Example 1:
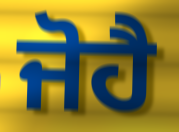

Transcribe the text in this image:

ਜੋਹੈ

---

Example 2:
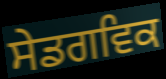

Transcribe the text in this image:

ਸੇਡਗਵਿਕ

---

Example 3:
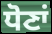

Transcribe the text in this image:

ਧੋਣਾਂ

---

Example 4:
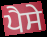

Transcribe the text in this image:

ਪੈਸੇ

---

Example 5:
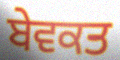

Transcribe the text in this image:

ਬੇਵਕਤ